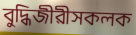
বুদ্ধিজীৱীসকলক